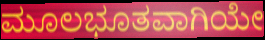
ಮೂಲಭೂತವಾಗಿಯೇ